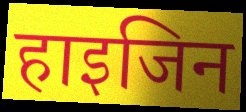
हाइजिन